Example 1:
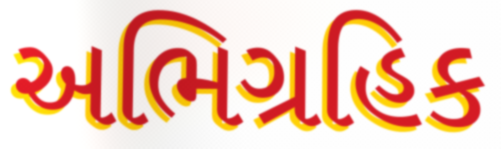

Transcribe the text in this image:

અભિગ્રહિક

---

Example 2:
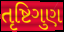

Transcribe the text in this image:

તૃષ્ટિગુણ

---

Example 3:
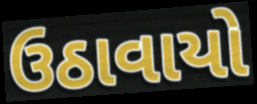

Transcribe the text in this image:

ઉઠાવાયો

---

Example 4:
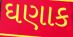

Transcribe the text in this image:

ઘણાક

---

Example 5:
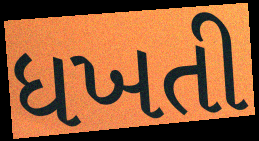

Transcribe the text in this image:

ધખતી